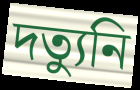
দত্যুনি